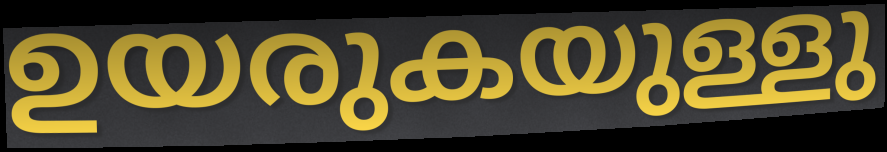
ഉയരുകയുള്ളു